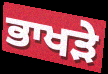
ਭਾਖੜੇ